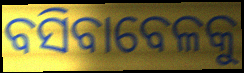
ବସିବାବେଳକୁ